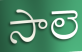
సాలె